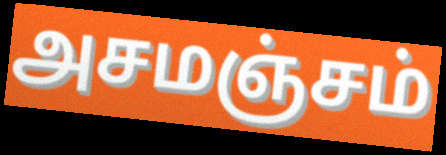
அசமஞ்சம்